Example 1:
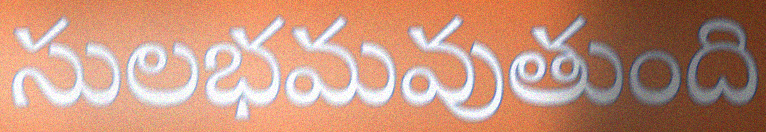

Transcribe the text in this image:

సులభమవుతుంది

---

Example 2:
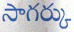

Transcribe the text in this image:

సాగర్కు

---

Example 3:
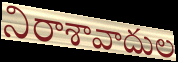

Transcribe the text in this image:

నిరాశావాదుల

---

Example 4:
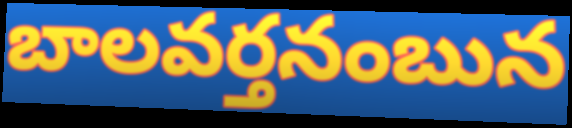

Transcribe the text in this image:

బాలవర్తనంబున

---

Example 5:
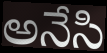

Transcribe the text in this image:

అనేసి